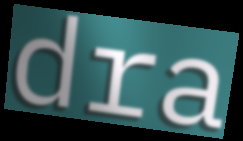
dra